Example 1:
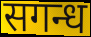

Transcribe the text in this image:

सगन्ध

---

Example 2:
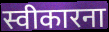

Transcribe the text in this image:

स्वीकारना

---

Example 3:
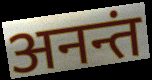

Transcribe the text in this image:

अनन्तं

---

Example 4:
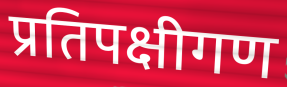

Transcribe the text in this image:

प्रतिपक्षीगण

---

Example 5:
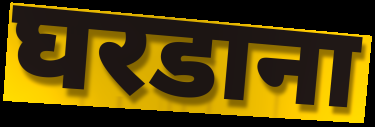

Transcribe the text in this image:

घरडाना